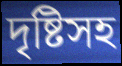
দৃষ্টিসহ